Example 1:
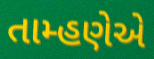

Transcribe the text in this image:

તામ્હણેએ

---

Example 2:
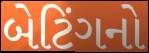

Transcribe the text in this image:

બેટિંગનો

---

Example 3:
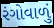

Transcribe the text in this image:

રંગોવાળું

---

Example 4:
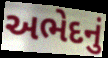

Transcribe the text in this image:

અભેદનું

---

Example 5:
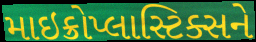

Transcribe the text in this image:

માઇક્રોપ્લાસ્ટિક્સને